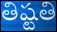
తిష్టతి